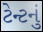
ટેન્ટનું